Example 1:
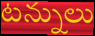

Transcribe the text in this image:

టన్నులు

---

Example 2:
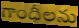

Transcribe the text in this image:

గాంధీలను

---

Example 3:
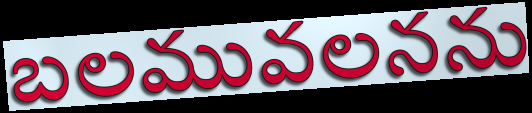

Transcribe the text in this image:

బలమువలనను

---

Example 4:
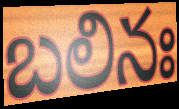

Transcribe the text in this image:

బలినః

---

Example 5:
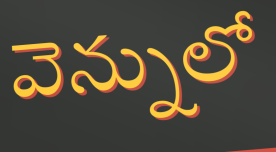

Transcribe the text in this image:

వెన్నులో